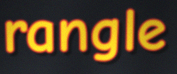
rangle